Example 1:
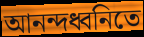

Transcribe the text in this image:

আনন্দধ্বনিতে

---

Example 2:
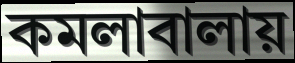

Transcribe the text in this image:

কমলাবালায়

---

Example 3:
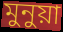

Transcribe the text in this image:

মুনুয়া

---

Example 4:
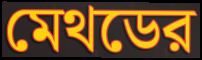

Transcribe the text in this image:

মেথডের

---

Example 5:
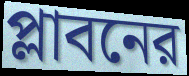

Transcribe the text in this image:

প্লাবনের